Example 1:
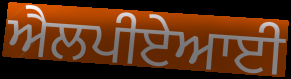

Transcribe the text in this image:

ਐਲਪੀਏਆਈ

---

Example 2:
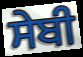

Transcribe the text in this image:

ਸੇਬੀ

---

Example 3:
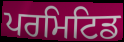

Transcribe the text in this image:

ਪਰਮਿਟਿਡ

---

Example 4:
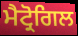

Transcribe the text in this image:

ਮੈਟ੍ਰੋਗਿਲ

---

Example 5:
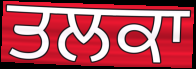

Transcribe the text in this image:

ਤਲਕਾ